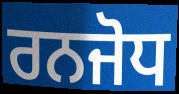
ਰਨਜੋਧ